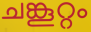
ചങ്കൂറ്റം